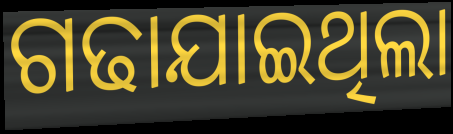
ଗଢାଯାଇଥିଲା